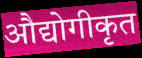
औद्योगीकृत